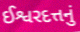
ઈશ્વરદત્તનું